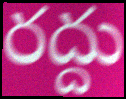
రద్దు